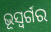
ଭୂସ୍ବର୍ଗର